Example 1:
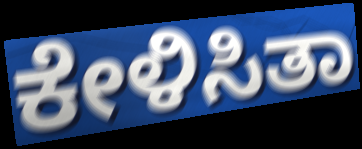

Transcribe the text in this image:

ಕೇಳಿಸಿತಾ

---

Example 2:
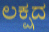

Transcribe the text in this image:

ಲಕ್ಷದ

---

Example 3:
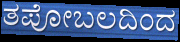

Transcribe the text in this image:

ತಪೋಬಲದಿಂದ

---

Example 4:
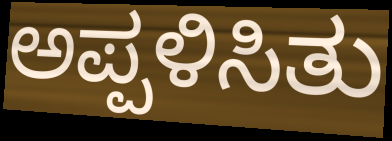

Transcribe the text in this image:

ಅಪ್ಪಳಿಸಿತು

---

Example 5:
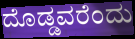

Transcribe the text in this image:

ದೊಡ್ಡವರೆಂದು